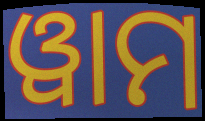
ୱାମ